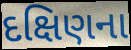
દક્ષિણના